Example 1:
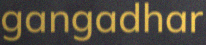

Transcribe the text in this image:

gangadhar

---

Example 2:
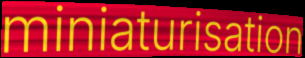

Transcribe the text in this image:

miniaturisation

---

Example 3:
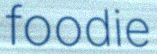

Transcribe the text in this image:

foodie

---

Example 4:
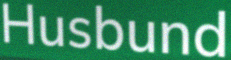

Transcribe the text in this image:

Husbund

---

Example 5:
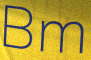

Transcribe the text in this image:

Bm